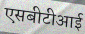
एसबीटीआई